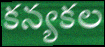
కన్యకల